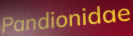
Pandionidae